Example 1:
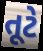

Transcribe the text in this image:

તૂટે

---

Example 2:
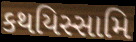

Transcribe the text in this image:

કથયિસ્સામિ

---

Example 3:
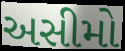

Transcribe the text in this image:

અસીમો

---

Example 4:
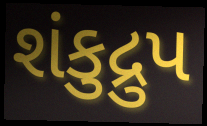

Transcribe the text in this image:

શંકુદ્રુપ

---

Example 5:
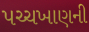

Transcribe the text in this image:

પચ્ચખાણની